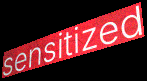
sensitized